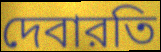
দেবারতি